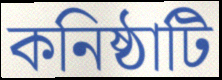
কনিষ্ঠাটি